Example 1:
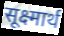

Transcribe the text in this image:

सूक्ष्मार्थ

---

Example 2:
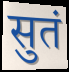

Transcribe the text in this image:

सुतं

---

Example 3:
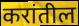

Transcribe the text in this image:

करांतील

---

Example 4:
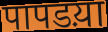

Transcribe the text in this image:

पापडय़ा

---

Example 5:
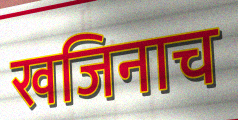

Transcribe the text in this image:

खजिनाच